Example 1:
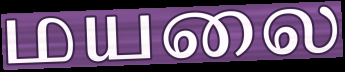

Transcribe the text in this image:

மயலை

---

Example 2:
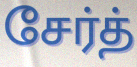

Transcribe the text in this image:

சேர்த்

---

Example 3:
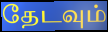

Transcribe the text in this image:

தேடவும்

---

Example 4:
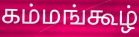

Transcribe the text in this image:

கம்மங்கூழ்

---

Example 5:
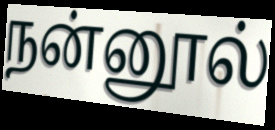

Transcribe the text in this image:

நன்னூல்